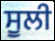
ਸੂਲੀ